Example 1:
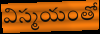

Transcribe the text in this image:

విస్మయంతో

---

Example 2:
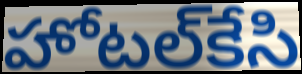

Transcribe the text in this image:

హోటల్‌కేసి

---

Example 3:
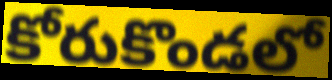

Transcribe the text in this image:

కోరుకొండలో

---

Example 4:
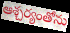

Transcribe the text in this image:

ఆశ్చర్యంతోను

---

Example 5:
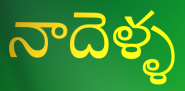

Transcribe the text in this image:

నాదెళ్ళ